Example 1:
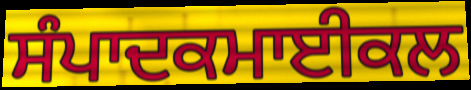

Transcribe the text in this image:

ਸੰਪਾਦਕਮਾਈਕਲ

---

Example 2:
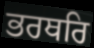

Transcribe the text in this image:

ਭਰਥਰਿ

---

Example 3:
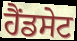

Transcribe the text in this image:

ਹੈਂਡਸੇਟ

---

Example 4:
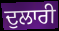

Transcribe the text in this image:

ਦੁਲਾਰੀ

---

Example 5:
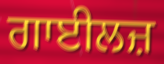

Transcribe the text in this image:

ਗਾਈਲਜ਼